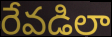
రేవడిలా